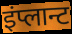
इंप्लान्ट